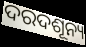
ଦରଦଶୂନ୍ୟ